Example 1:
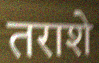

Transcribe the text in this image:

तराशे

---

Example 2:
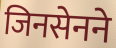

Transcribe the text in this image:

जिनसेनने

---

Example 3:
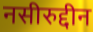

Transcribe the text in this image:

नसीरुद्दीन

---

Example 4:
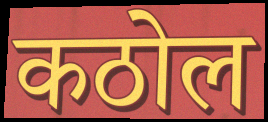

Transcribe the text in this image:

कठोल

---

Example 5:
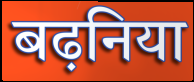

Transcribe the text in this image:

बढ़निया